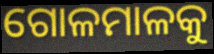
ଗୋଳମାଳକୁ